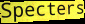
Specters